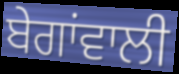
ਬੇਗਾਂਵਾਲੀ